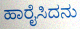
ಹಾರೈಸಿದನು